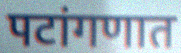
पटांगणात